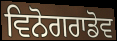
ਵਿਨੋਗਰਾਡੋਵ